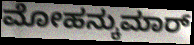
ಮೋಹನ್ಕುಮಾರ್